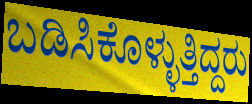
ಬಡಿಸಿಕೊಳ್ಳುತ್ತಿದ್ದರು